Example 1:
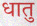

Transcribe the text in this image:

धातु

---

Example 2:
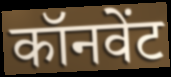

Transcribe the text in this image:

कॉनवेंट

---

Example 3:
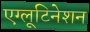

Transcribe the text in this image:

एग्लूटिनेशन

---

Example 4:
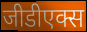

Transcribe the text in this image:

जीडीएक्स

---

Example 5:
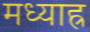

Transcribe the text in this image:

मध्याह्र